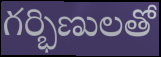
గర్భిణులతో